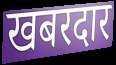
खबरदार